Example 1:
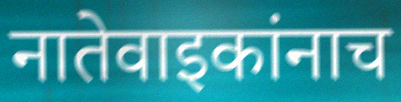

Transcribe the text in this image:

नातेवाइकांनाच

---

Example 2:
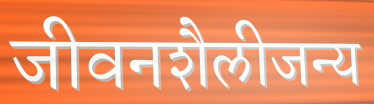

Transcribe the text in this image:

जीवनशैलीजन्य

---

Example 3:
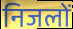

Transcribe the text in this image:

निजलों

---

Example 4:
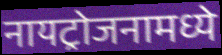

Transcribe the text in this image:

नायट्रोजनामध्ये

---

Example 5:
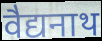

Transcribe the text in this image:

वैद्यनाथ